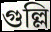
গুল্লি